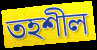
তহশীল